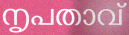
നൃപതാവ്